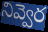
నివ్వెర